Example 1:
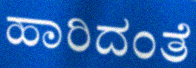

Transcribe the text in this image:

ಹಾರಿದಂತೆ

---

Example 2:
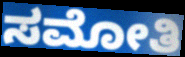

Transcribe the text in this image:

ಸಮೋತಿ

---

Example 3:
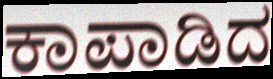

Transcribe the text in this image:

ಕಾಪಾಡಿದ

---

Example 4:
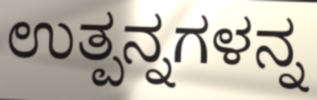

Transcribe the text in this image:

ಉತ್ಪನ್ನಗಳನ್ನ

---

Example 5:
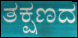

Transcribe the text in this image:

ತಕ್ಷಣದ